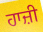
ਹਾਜ਼ੀ